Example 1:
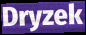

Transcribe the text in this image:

Dryzek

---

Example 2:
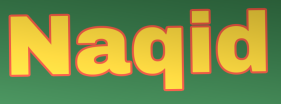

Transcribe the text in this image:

Naqid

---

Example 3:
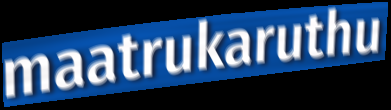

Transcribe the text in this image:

maatrukaruthu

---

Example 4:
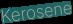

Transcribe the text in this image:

Kerosene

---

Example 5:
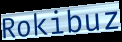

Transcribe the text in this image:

Rokibuz